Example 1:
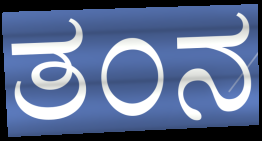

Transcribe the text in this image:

ತಂನ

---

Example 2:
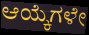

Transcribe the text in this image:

ಆಯ್ಕೆಗಳೇ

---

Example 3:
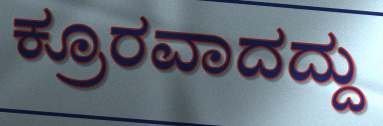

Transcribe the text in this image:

ಕ್ರೂರವಾದದ್ದು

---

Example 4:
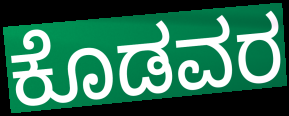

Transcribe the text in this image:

ಕೊಡವರ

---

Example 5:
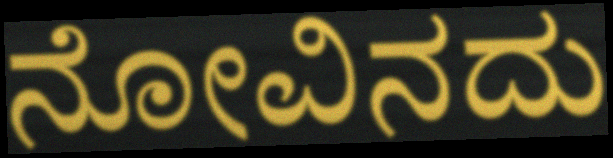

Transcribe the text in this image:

ನೋವಿನದು